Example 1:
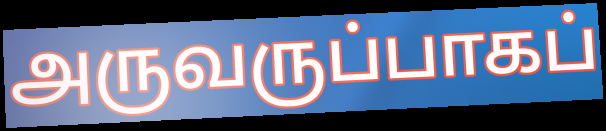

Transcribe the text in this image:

அருவருப்பாகப்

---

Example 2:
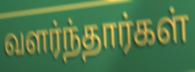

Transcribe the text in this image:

வளர்ந்தார்கள்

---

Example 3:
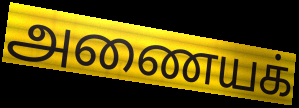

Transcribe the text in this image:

அணையக்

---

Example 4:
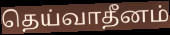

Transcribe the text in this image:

தெய்வாதீனம்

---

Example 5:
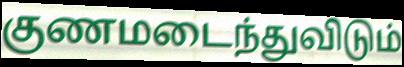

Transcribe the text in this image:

குணமடைந்துவிடும்